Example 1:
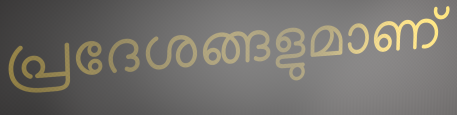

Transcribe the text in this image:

പ്രദേശങ്ങളുമാണ്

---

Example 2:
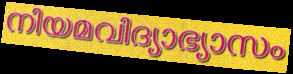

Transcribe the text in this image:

നിയമവിദ്യാഭ്യാസം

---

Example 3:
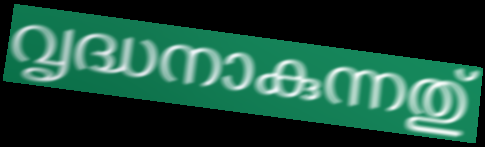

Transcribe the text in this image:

വൃദ്ധനാകുന്നതു്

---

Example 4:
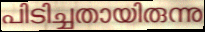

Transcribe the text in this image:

പിടിച്ചതായിരുന്നു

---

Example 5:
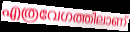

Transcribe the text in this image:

എത്രവേഗത്തിലാണ്